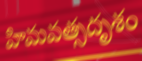
హిమవత్సదృశం